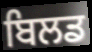
ਬਿਲਡ